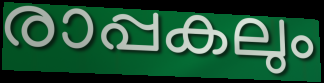
രാപ്പകലും